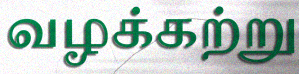
வழக்கற்று